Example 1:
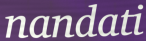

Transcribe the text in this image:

nandati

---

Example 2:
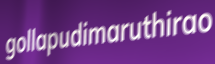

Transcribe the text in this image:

gollapudimaruthirao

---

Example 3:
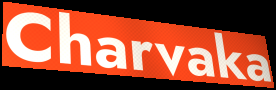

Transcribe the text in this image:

Charvaka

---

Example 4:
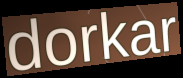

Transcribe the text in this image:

dorkar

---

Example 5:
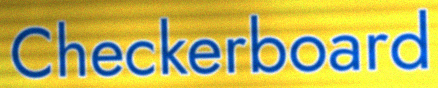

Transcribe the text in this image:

Checkerboard